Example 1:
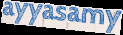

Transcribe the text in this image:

ayyasamy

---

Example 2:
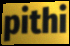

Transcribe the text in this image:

pithi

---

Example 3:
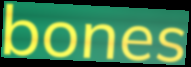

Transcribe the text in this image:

bones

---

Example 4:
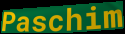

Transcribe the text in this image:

Paschim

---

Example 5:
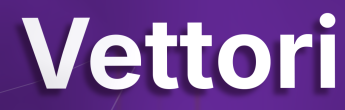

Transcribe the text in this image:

Vettori